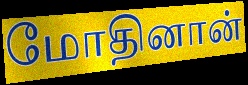
மோதினான்